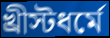
খ্রীস্টধর্মে